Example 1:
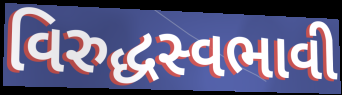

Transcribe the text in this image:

વિરુદ્ધસ્વભાવી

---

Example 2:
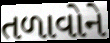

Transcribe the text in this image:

તળાવોને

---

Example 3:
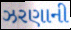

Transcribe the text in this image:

ઝરણાની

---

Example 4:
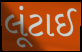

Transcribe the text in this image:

લૂંટાઈ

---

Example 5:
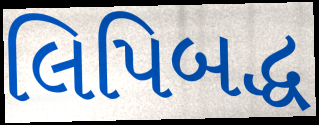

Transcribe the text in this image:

લિપિબદ્ધ